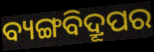
ବ୍ୟଙ୍ଗବିଦ୍ରୂପର